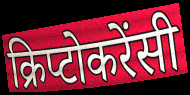
क्रिप्टोकरेंसी